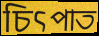
চিৎপাত